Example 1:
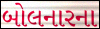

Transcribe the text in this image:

બોલનારના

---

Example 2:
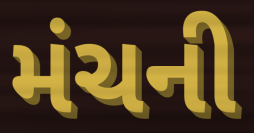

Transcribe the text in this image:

મંચની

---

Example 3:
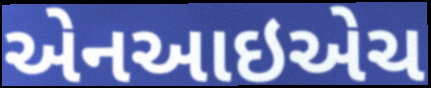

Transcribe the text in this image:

એનઆઇએચ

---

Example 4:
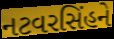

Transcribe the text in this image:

નટવરસિંહને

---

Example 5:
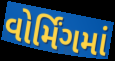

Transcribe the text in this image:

વોર્મિંગમાં